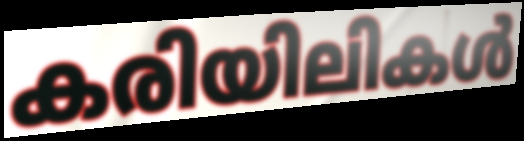
കരിയിലികൾ